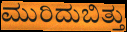
ಮುರಿದುಬಿತ್ತು